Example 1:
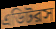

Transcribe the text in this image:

এডিটরস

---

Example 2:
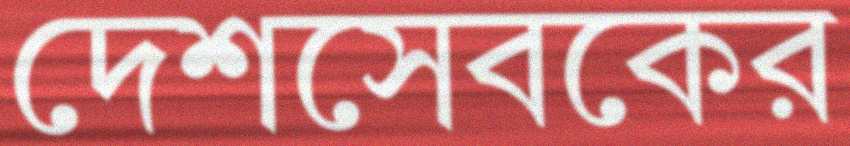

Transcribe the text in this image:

দেশসেবকের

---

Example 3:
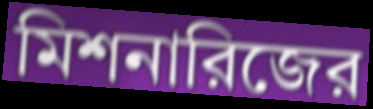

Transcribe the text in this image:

মিশনারিজের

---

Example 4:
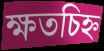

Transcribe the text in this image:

ক্ষতচিহ্ন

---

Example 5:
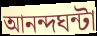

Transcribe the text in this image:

আনন্দঘন্টা